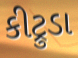
કીટ્રુડા